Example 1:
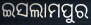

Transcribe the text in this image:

ଇସଲାମପୁର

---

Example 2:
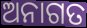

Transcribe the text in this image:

ଅନାଗତ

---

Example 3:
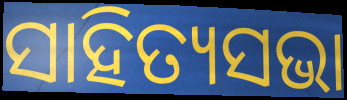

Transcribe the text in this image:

ସାହିତ୍ୟସଭା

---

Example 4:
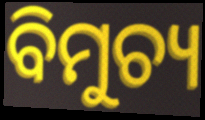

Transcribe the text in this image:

ବିମୁଚ୍ୟ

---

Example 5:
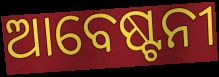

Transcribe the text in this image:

ଆବେଷ୍ଟନୀ